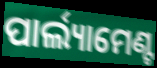
ପାର୍ଲ୍ୟାମେଣ୍ଟ